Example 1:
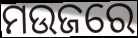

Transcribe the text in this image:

ମଉଜରେ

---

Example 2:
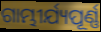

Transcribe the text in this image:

ଗାମ୍ଭୀର୍ଯ୍ୟପୂର୍ଣ୍ଣ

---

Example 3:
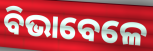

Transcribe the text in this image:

ବିଭାବେଳେ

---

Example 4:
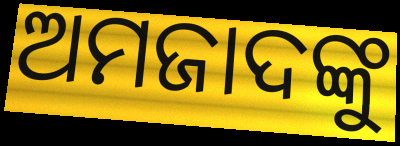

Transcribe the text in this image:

ଅମଜାଦଙ୍କୁ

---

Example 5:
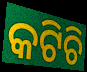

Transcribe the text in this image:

କଟିଚି